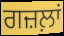
ਗਜ਼ਲ਼ਾਂ